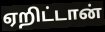
ஏறிட்டான்